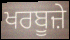
ਖਰਬੂਜ਼ੇ